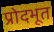
प्रोदभूत